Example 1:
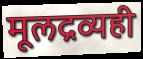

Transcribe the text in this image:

मूलद्रव्यही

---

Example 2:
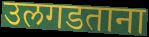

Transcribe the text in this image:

उलगडताना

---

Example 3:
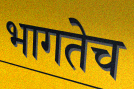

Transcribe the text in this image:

भागतेच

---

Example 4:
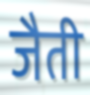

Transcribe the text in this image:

जैती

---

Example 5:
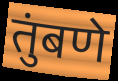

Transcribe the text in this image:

तुंबणे